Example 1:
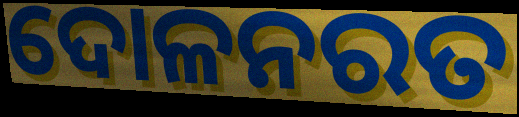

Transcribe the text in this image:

ଦୋଳନରତ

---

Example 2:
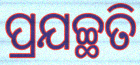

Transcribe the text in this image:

ପ୍ରଯଚ୍ଛତି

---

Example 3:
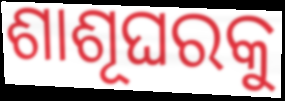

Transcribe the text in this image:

ଶାଶୂଘରକୁ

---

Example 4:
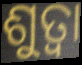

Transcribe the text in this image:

ଶୁତ୍ବା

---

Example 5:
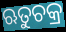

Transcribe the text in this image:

ଋତୁଚକ୍ର